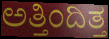
ಅತ್ತಿಂದಿತ್ತ